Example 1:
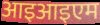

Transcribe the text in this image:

आइआइएम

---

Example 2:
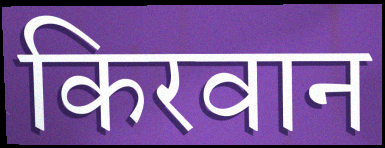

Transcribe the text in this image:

किरवान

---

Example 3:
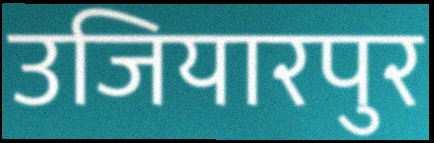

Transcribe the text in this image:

उजियारपुर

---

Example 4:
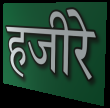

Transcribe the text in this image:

हजीरे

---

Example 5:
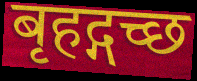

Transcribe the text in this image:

बृहद्गच्छ